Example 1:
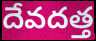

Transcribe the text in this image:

దేవదత్త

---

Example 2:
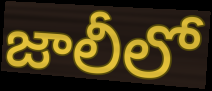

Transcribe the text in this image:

జాలీలో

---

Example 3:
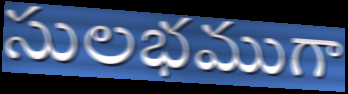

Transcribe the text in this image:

సులభముగా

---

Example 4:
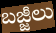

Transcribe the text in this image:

బజ్జీలు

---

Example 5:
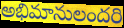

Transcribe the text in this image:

అభిమానులందరి